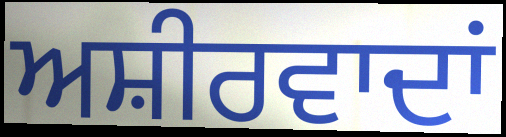
ਅਸ਼ੀਰਵਾਦਾਂ